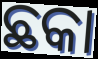
ଛକା